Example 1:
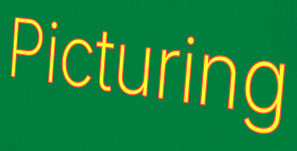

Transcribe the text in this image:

Picturing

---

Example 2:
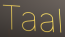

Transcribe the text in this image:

Taal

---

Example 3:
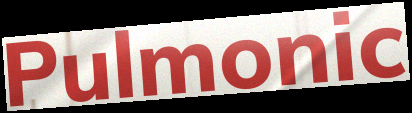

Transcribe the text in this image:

Pulmonic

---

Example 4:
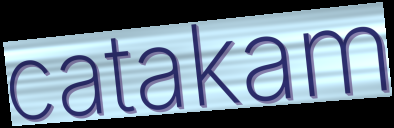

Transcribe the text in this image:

catakam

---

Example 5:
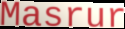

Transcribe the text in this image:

Masrur